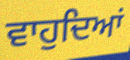
ਵਾਹੁਦਿਆਂ